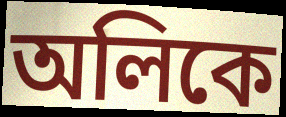
অলিকে